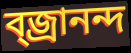
ব্জ্রানন্দ